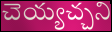
చెయ్యచ్చని